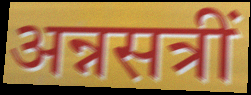
अन्नसत्रीं